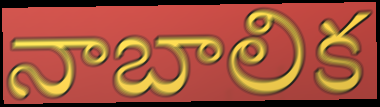
నాబాలిక